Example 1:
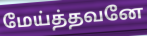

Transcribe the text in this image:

மேய்த்தவனே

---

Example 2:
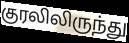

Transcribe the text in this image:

குரலிலிருந்து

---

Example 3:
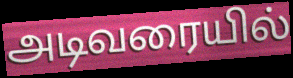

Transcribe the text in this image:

அடிவரையில்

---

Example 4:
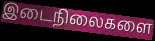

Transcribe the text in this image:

இடைநிலைகளை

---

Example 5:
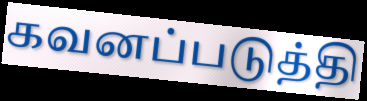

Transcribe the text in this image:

கவனப்படுத்தி